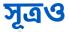
সূত্ৰও